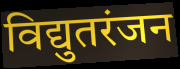
विद्युतरंजन